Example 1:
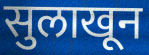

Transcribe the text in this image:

सुलाखून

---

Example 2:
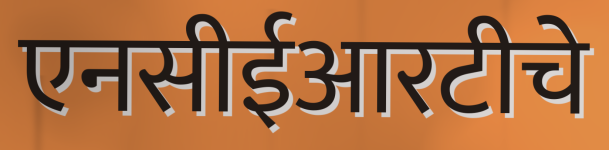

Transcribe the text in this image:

एनसीईआरटीचे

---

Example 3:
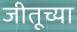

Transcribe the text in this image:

जीतूच्या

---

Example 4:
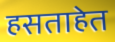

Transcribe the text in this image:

हसताहेत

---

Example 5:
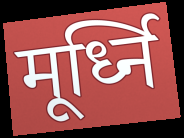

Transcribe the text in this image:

मूर्ध्नि